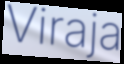
Viraja